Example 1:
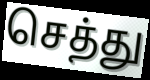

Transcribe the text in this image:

செத்து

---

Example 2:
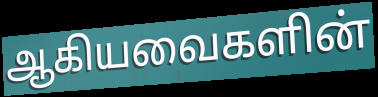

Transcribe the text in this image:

ஆகியவைகளின்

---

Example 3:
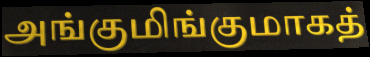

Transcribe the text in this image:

அங்குமிங்குமாகத்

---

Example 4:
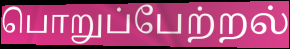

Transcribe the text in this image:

பொறுப்பேற்றல்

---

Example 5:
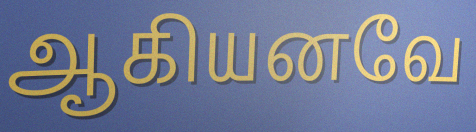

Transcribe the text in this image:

ஆகியனவே